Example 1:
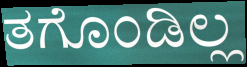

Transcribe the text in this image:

ತಗೊಂಡಿಲ್ಲ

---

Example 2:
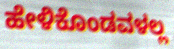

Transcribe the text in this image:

ಹೇಳಿಕೊಂಡವಳಲ್ಲ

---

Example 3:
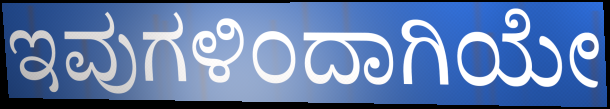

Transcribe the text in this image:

ಇವುಗಳಿಂದಾಗಿಯೇ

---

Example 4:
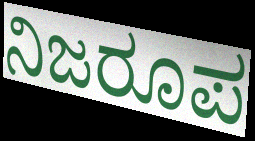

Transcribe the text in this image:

ನಿಜರೂಪ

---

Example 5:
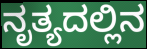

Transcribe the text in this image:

ನೃತ್ಯದಲ್ಲಿನ